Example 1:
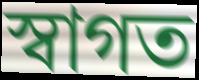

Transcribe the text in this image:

স্বাগত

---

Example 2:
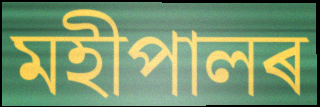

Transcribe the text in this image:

মহীপালৰ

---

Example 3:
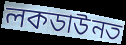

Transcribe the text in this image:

লকডাউনত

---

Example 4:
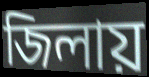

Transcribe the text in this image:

জিলায়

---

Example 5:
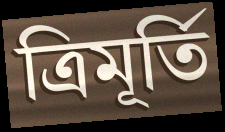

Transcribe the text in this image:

ত্ৰিমূৰ্তি